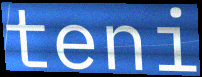
teni